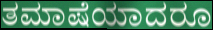
ತಮಾಷೆಯಾದರೂ